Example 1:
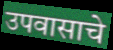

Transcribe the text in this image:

उपवासाचे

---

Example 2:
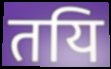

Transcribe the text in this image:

तयि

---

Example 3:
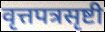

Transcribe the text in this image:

वृत्तपत्रसृष्टी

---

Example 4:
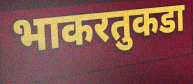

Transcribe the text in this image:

भाकरतुकडा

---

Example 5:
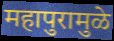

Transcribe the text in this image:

महापुरामुळे